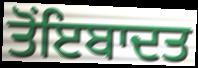
ਤੋਂਇਬਾਦਤ